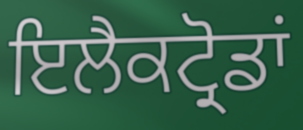
ਇਲੈਕਟ੍ਰੋਡਾਂ